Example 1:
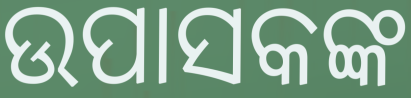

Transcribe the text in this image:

ଉପାସକଙ୍କ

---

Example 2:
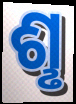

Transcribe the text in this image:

ଶୢ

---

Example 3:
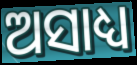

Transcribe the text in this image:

ଅସାଧ୍ୟ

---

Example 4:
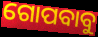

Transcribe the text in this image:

ଗୋପବାବୁ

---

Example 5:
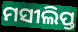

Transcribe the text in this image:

ମସୀଲିପ୍ତ